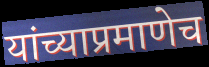
यांच्याप्रमाणेच